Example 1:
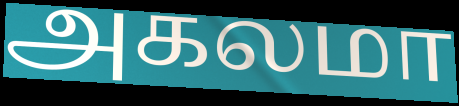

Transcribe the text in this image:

அகலமா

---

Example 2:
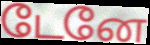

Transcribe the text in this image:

டேனே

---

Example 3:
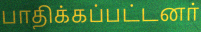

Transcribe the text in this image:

பாதிக்கப்பட்டனர்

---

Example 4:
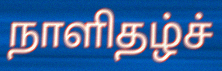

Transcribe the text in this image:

நாளிதழ்ச்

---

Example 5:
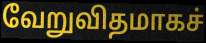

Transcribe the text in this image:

வேறுவிதமாகச்